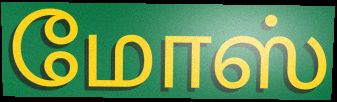
மோஸ்